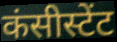
कंसीस्टेंट